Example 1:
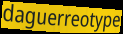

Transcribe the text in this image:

daguerreotype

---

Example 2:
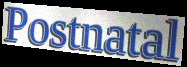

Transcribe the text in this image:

Postnatal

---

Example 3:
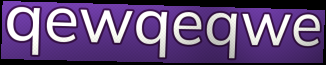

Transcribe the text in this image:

qewqeqwe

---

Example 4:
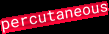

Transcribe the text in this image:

percutaneous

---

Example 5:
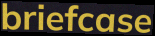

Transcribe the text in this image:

briefcase